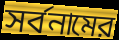
সর্বনামের